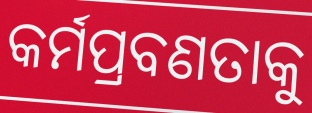
କର୍ମପ୍ରବଣତାକୁ